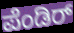
ಪೆಂಡಿರ್